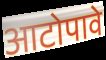
आटोपावे